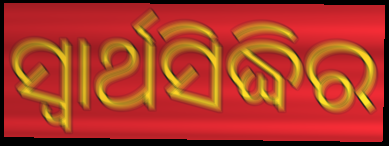
ସ୍ଵାର୍ଥସିଦ୍ଧିର